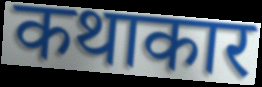
कथाकार